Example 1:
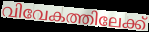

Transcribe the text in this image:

വിവേകത്തിലേക്ക്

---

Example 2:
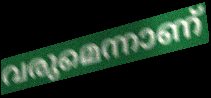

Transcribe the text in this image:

വരുമെന്നാണ്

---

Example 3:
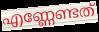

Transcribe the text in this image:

എണ്ണേണ്ടത്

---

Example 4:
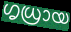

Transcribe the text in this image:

ഗൃധ്രായ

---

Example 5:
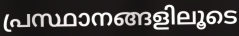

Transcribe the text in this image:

പ്രസ്ഥാനങ്ങളിലൂടെ